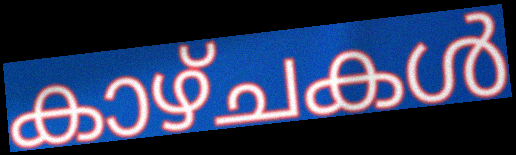
കാഴ്ചകൾ